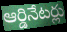
ఆర్డినేటర్లు